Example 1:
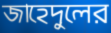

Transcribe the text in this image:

জাহেদুলের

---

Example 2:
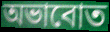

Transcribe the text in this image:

অভাবোত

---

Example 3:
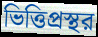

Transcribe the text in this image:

ভিত্তিপ্রস্থর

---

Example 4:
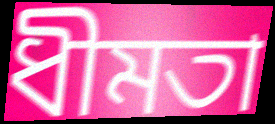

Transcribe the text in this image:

ধীমতা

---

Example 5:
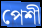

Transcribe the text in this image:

পেশী